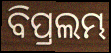
ବିପ୍ରଲମ୍ଭ